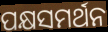
ପକ୍ଷସମର୍ଥନ